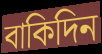
বাকিদিন